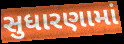
સુધારણામાં